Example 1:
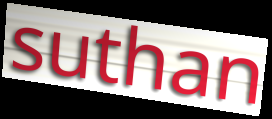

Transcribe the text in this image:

suthan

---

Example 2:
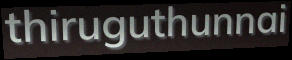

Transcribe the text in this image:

thiruguthunnai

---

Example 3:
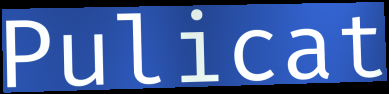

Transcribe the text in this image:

Pulicat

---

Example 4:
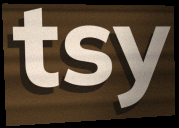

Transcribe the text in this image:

tsy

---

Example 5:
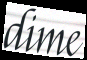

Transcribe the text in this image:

dime